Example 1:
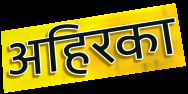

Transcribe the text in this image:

अहिरका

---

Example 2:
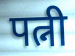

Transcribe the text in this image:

पत्नी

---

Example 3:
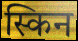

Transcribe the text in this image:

स्किन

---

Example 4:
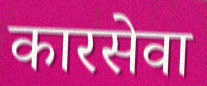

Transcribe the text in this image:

कारसेवा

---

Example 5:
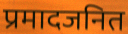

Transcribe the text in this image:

प्रमादजनित